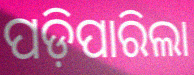
ପଡ଼ିପାରିଲା